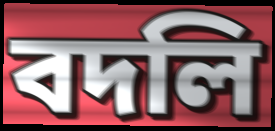
বদলি